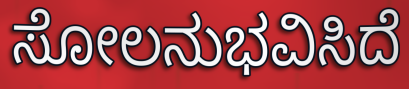
ಸೋಲನುಭವಿಸಿದೆ